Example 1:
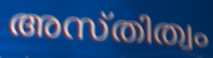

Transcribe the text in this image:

അസ്‌തിത്വം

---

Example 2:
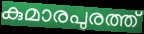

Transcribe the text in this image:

കുമാരപുരത്ത്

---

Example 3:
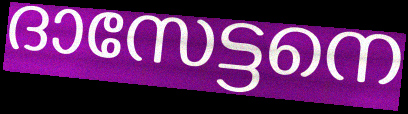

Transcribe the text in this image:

ദാസേട്ടനെ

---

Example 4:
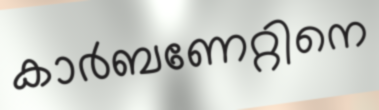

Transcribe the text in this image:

കാർബണേറ്റിനെ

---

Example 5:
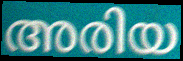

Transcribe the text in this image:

അരിയ